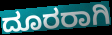
ದೂರರಾಗಿ